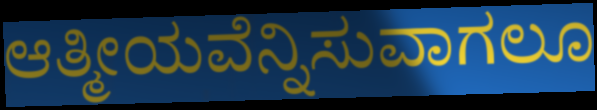
ಆತ್ಮೀಯವೆನ್ನಿಸುವಾಗಲೂ